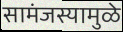
सामंजस्यामुळे